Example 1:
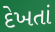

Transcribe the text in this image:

દેખતાં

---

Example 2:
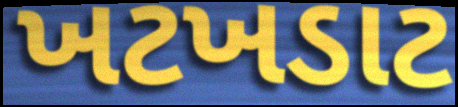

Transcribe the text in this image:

ખટખડાટ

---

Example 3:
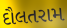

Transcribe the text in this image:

દૌલતરામ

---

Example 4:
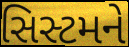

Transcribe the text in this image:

સિસ્ટમને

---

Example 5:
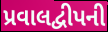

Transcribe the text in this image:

પ્રવાલદ્વીપની